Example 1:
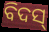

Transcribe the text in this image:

ବିଦସ୍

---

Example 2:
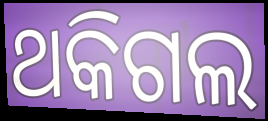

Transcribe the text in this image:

ଥକିଗଲ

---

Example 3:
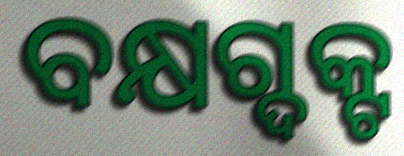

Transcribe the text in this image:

ବକ୍ଷଗ୍ଦକ୍ଟ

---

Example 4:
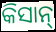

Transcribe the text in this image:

କିସାନ୍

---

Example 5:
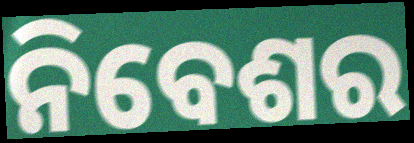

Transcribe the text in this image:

ନିବେଶର